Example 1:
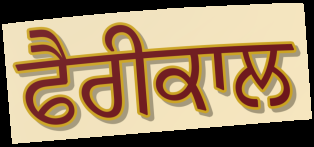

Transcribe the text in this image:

ਫੈਰੀਕਾਲ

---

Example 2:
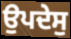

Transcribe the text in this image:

ਉਪਦੇਸੁ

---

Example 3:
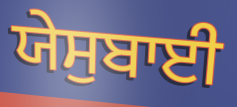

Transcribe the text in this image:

ਯੇਸੁਬਾਈ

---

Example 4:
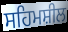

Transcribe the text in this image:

ਸਹਿਮਸ਼ੀਲ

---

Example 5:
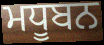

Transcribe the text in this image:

ਮਧੂਬਨ